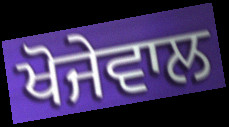
ਖੋਜੇਵਾਲ